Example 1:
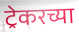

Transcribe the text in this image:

ट्रेकरच्या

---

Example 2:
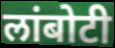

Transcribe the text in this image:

लांबोटी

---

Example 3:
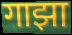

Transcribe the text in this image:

गाझा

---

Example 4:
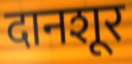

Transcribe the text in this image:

दानशूर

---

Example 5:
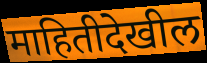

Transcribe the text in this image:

माहितीदेखील